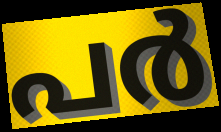
പർ